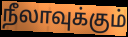
நீலாவுக்கும்